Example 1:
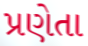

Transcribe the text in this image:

પ્રણેતા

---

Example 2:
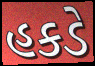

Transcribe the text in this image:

હકડે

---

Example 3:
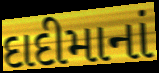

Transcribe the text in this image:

દાદીમાનાં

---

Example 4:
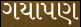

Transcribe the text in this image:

ગયાપણ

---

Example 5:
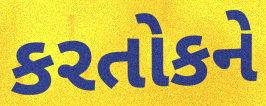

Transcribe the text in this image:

કરતોકને